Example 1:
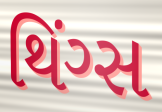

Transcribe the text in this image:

થિંગ્સ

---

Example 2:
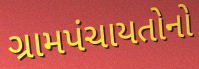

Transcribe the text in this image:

ગ્રામપંચાયતોનો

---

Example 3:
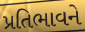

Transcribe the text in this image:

પ્રતિભાવને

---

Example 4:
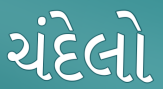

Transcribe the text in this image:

ચંદેલો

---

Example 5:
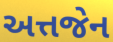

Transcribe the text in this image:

અત્તજેન